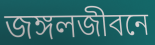
জঙ্গলজীবনে